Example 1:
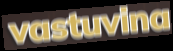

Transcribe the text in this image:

vastuvina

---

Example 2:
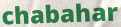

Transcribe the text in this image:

chabahar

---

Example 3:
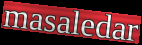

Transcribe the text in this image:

masaledar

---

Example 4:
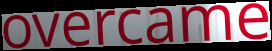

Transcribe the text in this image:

overcame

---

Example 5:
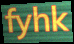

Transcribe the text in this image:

fyhk